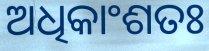
ଅଧିକାଂଶତଃ